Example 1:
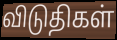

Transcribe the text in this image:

விடுதிகள்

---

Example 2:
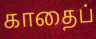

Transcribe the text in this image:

காதைப்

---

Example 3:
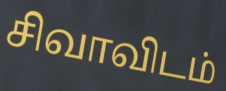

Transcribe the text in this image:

சிவாவிடம்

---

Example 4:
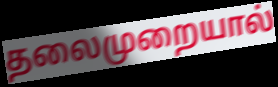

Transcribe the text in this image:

தலைமுறையால்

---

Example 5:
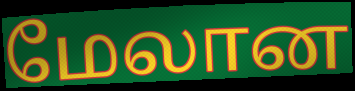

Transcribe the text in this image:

மேலான